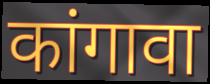
कांगावा